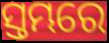
ସ୍ତମ୍ଭରେ